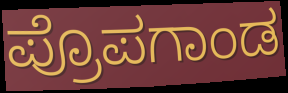
ಪ್ರೊಪಗಾಂಡ